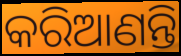
କରିଆଣନ୍ତି